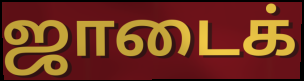
ஜாடைக்